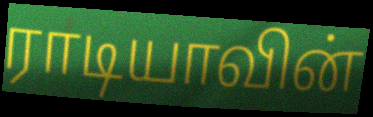
ராடியாவின்